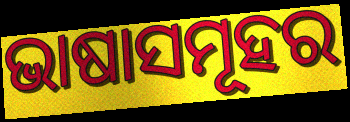
ଭାଷାସମୂହର